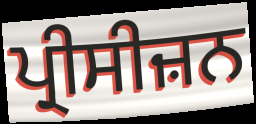
ਪ੍ਰੀਸੀਜ਼ਨ